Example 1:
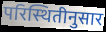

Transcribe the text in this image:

परिस्थितीनुसार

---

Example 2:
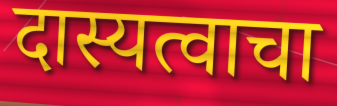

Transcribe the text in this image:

दास्यत्वाचा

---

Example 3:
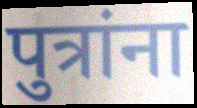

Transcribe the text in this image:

पुत्रांना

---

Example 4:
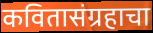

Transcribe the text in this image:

कवितासंग्रहाचा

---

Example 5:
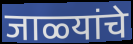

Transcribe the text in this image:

जाळ्यांचे